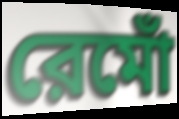
রেমোঁ